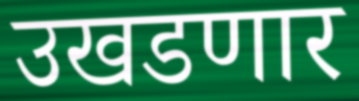
उखडणार